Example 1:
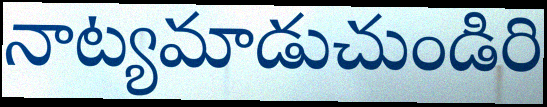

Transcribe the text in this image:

నాట్యమాడుచుండిరి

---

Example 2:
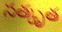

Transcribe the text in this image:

సత్కృత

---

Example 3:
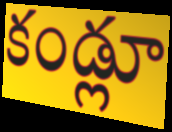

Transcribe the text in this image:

కండ్లూ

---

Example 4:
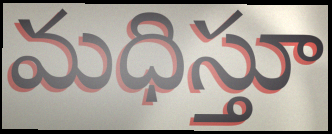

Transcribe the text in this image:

మధిస్తూ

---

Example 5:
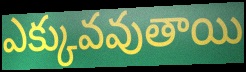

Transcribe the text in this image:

ఎక్కువవుతాయి